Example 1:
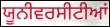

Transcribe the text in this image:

ਯੂਨੀਵਰਸੀਟੀਆਂ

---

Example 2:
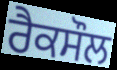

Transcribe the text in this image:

ਰੈਕਸੌਲ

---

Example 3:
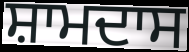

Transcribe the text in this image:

ਸ਼ਾਮਦਾਸ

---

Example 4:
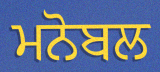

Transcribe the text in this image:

ਮਨੋਬਲ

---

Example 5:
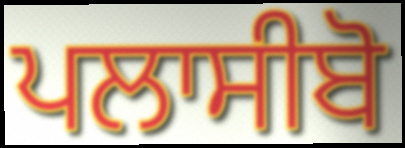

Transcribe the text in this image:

ਪਲਾਸੀਬੋ